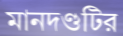
মানদণ্ডটির